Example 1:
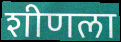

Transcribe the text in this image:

शीणला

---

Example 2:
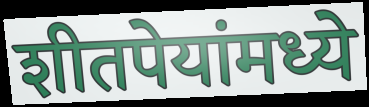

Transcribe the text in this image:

शीतपेयांमध्ये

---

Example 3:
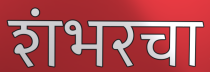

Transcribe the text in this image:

शंभरचा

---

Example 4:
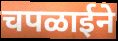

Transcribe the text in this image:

चपळाईने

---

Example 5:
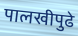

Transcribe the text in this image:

पालखीपुढे